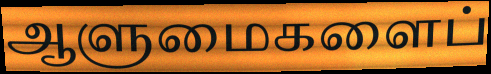
ஆளுமைகளைப்